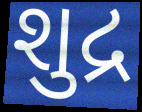
શુદ્ર